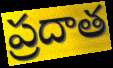
ప్రదాత